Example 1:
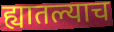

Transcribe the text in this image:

ह्यातल्याच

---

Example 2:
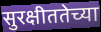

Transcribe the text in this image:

सुरक्षीततेच्या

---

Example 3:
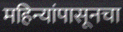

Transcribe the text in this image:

महिन्यांपासूनचा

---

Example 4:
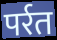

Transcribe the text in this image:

पर्रत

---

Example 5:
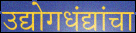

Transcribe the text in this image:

उद्योगधंद्यांचा